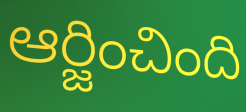
ఆర్జించింది